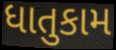
ધાતુકામ